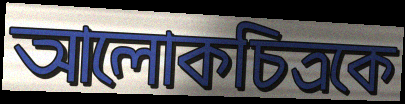
আলোকচিত্রকে